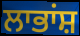
ਲਾਭਾਂਸ਼